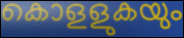
കൊളളുകയും